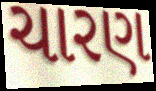
ચારણ